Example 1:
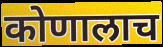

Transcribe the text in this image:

कोणालाच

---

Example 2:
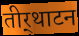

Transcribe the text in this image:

तीर्थाटन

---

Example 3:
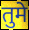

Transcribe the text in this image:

तुमे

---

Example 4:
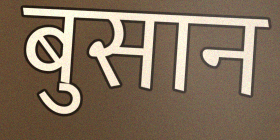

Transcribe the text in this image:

बुसान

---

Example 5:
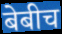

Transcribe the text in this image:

बेबीच